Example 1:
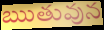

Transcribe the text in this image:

ఋతువున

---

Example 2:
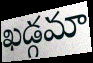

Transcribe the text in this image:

ఖడ్గమా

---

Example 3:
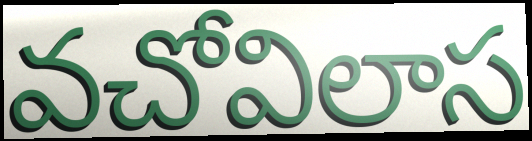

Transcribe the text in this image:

వచోవిలాస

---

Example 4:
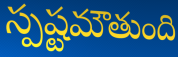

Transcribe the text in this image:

స్పష్టమౌతుంది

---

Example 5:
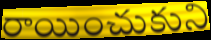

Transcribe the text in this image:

రాయించుకుని